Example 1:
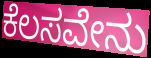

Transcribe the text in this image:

ಕೆಲಸವೇನು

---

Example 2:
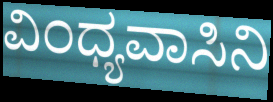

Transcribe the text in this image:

ವಿಂಧ್ಯವಾಸಿನಿ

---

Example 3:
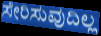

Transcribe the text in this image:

ಸೇರಿಸುವುದಿಲ್ಲ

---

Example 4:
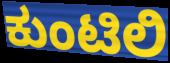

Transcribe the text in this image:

ಕುಂಟಿಲಿ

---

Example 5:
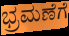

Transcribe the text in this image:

ಭ್ರಮಣೆಗೆ